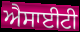
ਐਸਾਈਟੀ